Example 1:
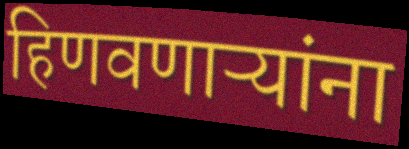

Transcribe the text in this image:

हिणवणाऱ्यांना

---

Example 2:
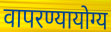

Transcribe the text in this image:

वापरण्यायोग्य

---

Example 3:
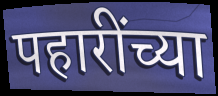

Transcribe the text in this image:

पहारींच्या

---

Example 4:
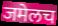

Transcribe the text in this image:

जमेलच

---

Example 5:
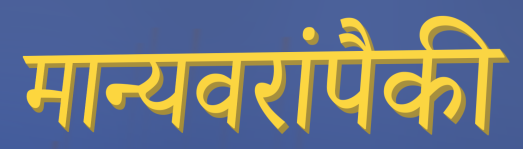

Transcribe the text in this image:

मान्यवरांपैकी